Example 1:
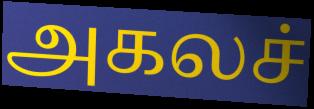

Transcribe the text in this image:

அகலச்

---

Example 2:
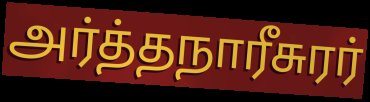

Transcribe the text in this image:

அர்த்தநாரீசுரர்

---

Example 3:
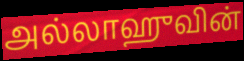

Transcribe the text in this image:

அல்லாஹுவின்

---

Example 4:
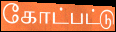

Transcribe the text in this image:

கோட்பட்டு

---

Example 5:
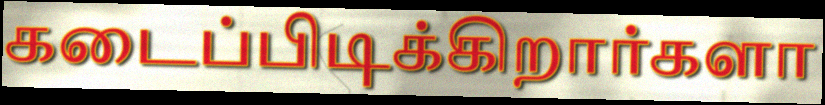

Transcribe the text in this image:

கடைப்பிடிக்கிறார்களா